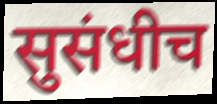
सुसंधीच